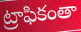
ట్రాఫికంతా